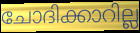
ചോദിക്കാറില്ല